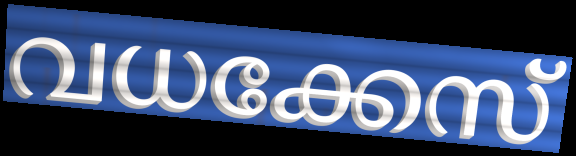
വധക്കേസ്